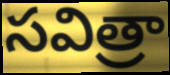
సవిత్రా